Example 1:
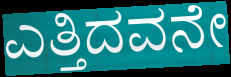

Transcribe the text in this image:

ಎತ್ತಿದವನೇ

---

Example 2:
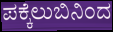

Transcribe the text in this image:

ಪಕ್ಕೆಲುಬಿನಿಂದ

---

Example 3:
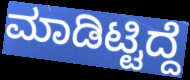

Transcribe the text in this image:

ಮಾಡಿಟ್ಟಿದ್ದೆ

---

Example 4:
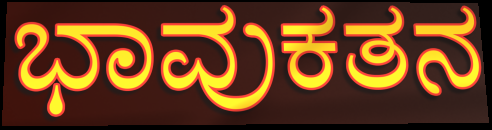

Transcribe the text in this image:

ಭಾವುಕತನ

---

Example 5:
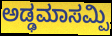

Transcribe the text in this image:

ಅಡ್ಢಮಾಸಮ್ಪಿ